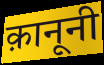
क़ानूनी